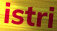
istri